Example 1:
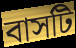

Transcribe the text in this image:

বাসটি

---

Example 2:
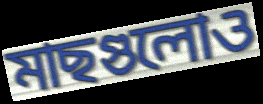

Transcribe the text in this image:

মাছগুলোও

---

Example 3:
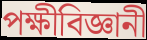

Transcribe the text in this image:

পক্ষীবিজ্ঞানী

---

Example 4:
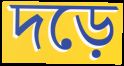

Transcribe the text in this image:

দড়ে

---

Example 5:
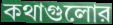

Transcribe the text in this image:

কথাগুলোর